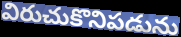
విరుచుకొనిపడును